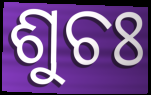
ଶୁଚଃ